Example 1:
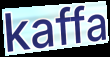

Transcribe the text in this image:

kaffa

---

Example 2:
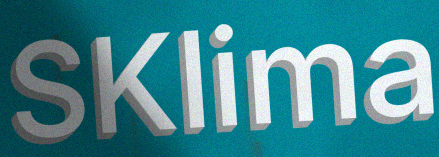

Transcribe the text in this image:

SKlima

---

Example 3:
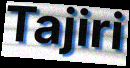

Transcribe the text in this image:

Tajiri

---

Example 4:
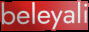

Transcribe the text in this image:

beleyali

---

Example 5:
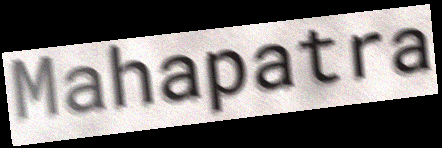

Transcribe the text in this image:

Mahapatra